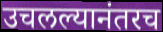
उचलल्यानंतरच